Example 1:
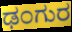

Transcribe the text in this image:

ಢಂಗುರ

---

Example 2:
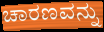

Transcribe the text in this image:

ಚಾರಣವನ್ನು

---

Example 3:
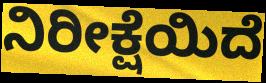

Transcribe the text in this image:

ನಿರೀಕ್ಷೆಯಿದೆ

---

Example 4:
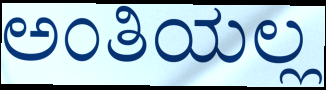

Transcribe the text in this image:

ಅಂತಿಯಲ್ಲ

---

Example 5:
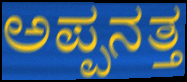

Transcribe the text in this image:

ಅಪ್ಪನತ್ತ